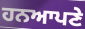
ਹਨਆਪਣੇ